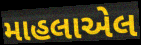
માહલાએલ